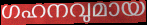
ഗഹനവുമായ